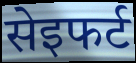
सेइफर्ट